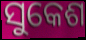
ସୁକେଶ